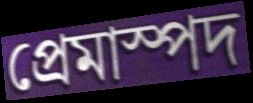
প্রেমাস্পদ